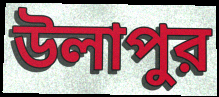
উলাপুর